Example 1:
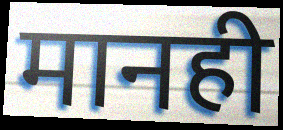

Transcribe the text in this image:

मानही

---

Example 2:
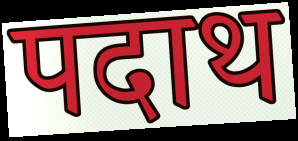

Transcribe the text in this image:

पदाथ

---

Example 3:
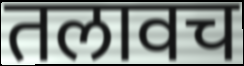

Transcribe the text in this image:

तलावच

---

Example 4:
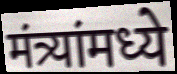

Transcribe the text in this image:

मंत्र्यांमध्ये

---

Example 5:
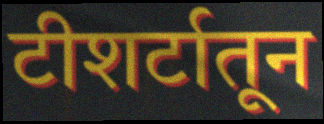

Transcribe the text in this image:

टीशर्टातून